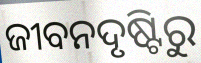
ଜୀବନଦୃଷ୍ଟିରୁ